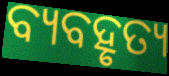
ବ୍ୟବହୃତ୍ୟ